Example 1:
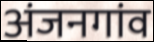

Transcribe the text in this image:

अंजनगांव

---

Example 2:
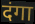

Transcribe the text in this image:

दंगा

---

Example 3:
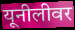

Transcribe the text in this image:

यूनीलीवर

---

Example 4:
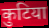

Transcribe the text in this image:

कुटिया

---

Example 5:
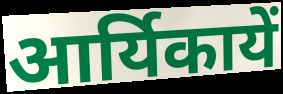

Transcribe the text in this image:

आर्यिकायें